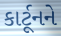
કાર્ટૂનને